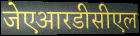
जेएआरडीसीएल